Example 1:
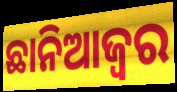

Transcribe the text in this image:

ଛାନିଆଜ୍ୱର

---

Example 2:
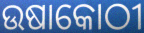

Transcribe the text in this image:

ଉଷାକୋଠୀ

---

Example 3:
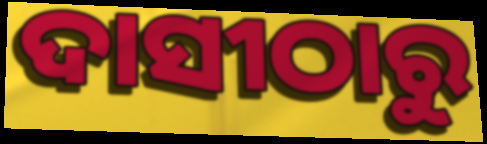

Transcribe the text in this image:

ଦାସୀଠାରୁ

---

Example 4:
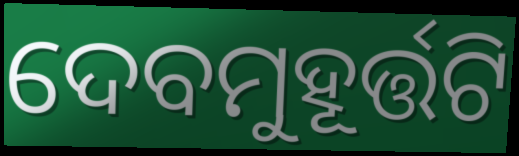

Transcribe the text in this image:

ଦେବମୁହୂର୍ତ୍ତଟି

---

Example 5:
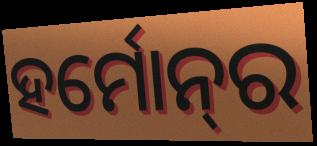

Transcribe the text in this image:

ହର୍ମୋନ୍‌ର